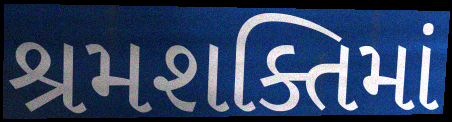
શ્રમશક્તિમાં